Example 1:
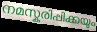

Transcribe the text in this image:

നമസ്കരിപ്പിക്കയും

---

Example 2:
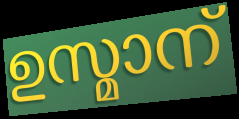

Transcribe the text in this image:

ഉസ്മാന്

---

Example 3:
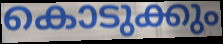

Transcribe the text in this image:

കൊടുക്കും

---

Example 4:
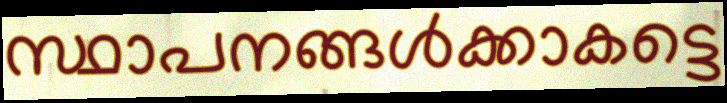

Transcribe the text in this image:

സ്ഥാപനങ്ങൾക്കാകട്ടെ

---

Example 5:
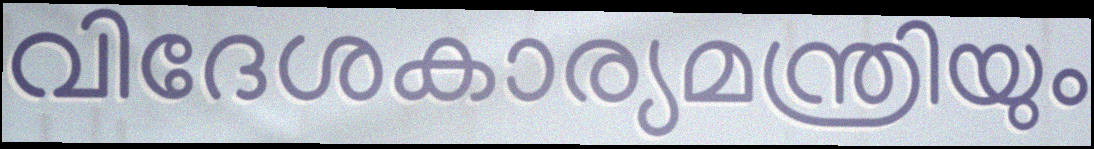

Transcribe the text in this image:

വിദേശകാര്യമന്ത്രിയും